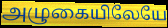
அழுகையிலேயே